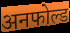
अनफोल्ड